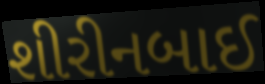
શીરીનબાઈ